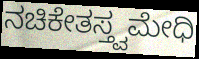
ನಚಿಕೇತಸ್ತ್ವಮೇಧಿ